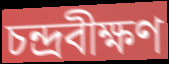
চন্দ্রবীক্ষণ